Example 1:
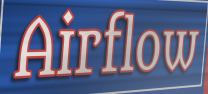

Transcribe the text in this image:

Airflow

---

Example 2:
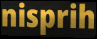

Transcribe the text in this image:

nisprih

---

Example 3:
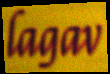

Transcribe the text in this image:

lagav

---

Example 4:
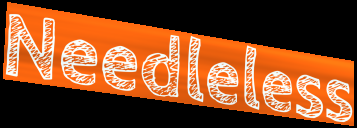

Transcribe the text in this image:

Needleless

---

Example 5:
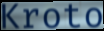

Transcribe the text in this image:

Kroto